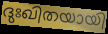
ദുഃഖിതയായി